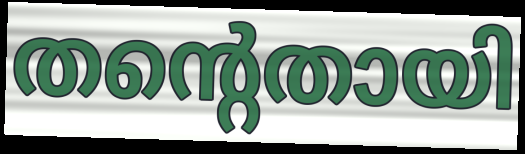
തന്റെതായി